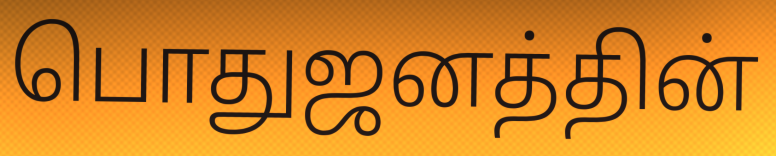
பொதுஜனத்தின்